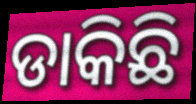
ଡାକିଛି